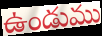
ఉండుము